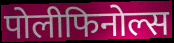
पोलीफिनोल्स